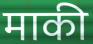
माकी